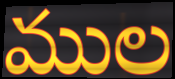
ముల